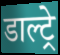
डाल्ट्रे